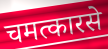
चमत्कारसे